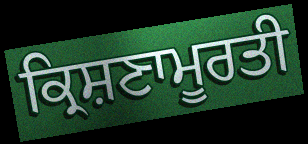
ਕ੍ਰਿਸ਼ਣਾਮੂਰਤੀ